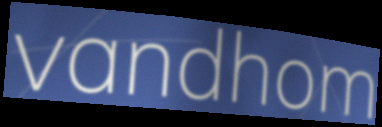
vandhom